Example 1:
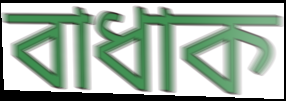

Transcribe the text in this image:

বাধাক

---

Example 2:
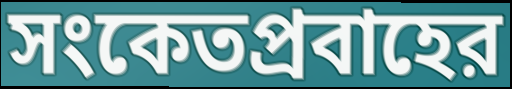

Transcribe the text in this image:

সংকেতপ্রবাহের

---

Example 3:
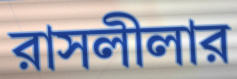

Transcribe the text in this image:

রাসলীলার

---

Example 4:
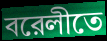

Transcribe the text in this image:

বরেলীতে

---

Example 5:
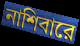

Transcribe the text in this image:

নাশিবারে